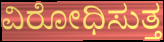
ವಿರೋಧಿಸುತ್ತ